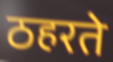
ठहरते